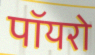
पॉयरो